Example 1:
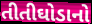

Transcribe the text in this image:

તીતીઘોડાનો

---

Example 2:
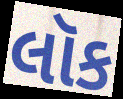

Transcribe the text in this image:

લૉક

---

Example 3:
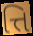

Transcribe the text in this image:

ત્તિ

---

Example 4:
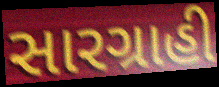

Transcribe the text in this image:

સારગ્રાહી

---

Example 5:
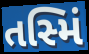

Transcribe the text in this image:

તસ્મિં